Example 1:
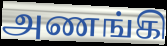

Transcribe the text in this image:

அணங்கி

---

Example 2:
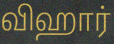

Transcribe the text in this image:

விஹார்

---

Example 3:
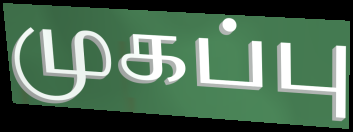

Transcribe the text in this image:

முகப்பு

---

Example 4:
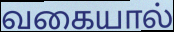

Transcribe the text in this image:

வகையால்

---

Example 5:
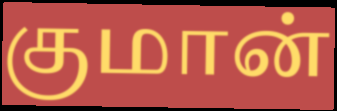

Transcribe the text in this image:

குமான்